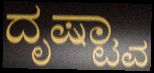
ದೃಷ್ಟ್ವಾ